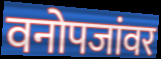
वनोपजांवर